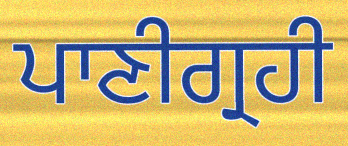
ਪਾਣੀਗ੍ਰਹੀ